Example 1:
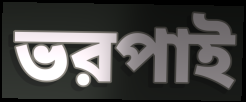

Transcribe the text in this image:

ভরপাই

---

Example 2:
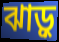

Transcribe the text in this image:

ঝাড়ু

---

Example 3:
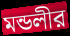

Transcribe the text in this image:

মন্ডলীর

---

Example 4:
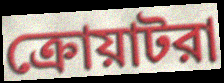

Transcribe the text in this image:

ক্রোয়াটরা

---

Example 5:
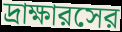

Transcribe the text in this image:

দ্রাক্ষারসের